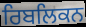
ਰਿਬਲਿਕਨ